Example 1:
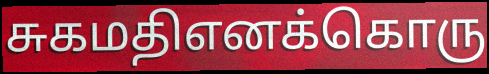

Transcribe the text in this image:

சுகமதிஎனக்கொரு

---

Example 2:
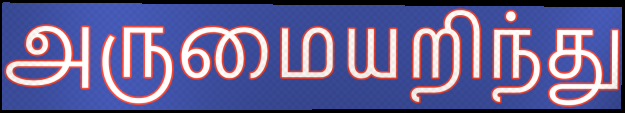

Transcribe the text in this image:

அருமையறிந்து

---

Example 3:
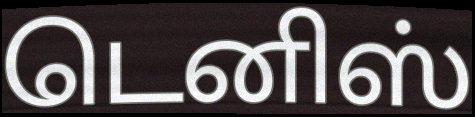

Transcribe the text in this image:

டெனிஸ்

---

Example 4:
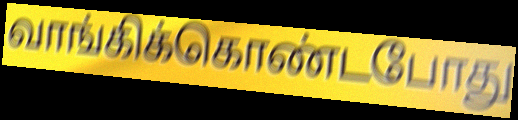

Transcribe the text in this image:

வாங்கிக்கொண்டபோது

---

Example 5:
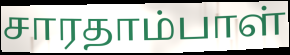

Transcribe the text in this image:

சாரதாம்பாள்